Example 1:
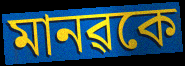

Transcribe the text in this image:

মানৱকে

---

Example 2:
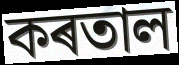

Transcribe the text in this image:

কৰতাল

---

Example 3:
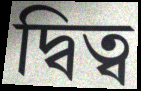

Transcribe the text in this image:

দ্বিত্ব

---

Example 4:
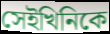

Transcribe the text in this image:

সেইখিনিকে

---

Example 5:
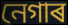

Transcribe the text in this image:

নেগাৰ